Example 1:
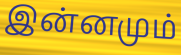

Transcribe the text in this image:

இன்னமும்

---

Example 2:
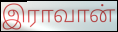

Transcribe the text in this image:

இராவான்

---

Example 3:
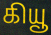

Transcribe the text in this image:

கியூ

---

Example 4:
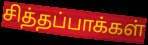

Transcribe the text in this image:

சித்தப்பாக்கள்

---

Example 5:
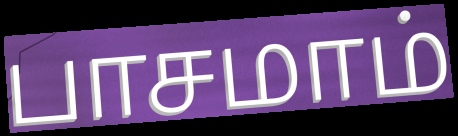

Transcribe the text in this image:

பாசமாம்